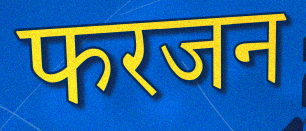
फरजन